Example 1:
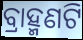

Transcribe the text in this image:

ବ୍ରାହ୍ମଣଟି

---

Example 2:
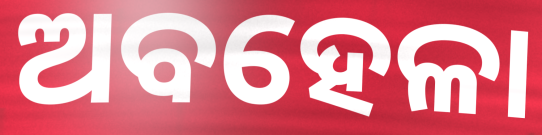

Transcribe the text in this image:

ଅବହେଳା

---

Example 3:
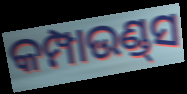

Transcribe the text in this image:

କମ୍ପାଉଣ୍ଡ୍‌ସ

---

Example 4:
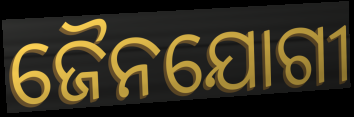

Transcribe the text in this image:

ଜୈନଯୋଗୀ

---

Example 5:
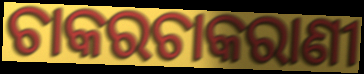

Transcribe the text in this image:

ଚାକରଚାକରାଣୀ